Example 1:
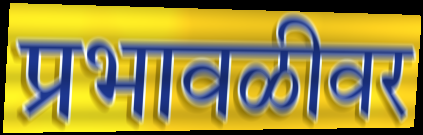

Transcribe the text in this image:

प्रभावळीवर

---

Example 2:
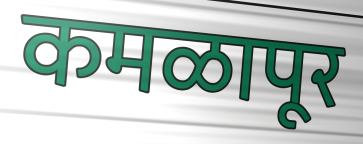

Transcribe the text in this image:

कमळापूर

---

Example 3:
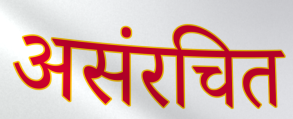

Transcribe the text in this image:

असंरचित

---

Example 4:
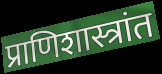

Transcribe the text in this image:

प्राणिशास्त्रांत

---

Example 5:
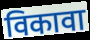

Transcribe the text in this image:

विकावा